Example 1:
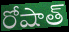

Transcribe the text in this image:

రోషాత్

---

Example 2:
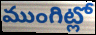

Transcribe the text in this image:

ముంగిట్లో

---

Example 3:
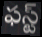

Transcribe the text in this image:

ఫస్ట్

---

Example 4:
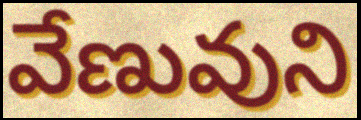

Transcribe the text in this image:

వేణువుని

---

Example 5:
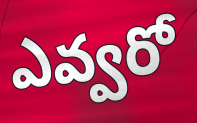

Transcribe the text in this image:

ఎవ్వరో